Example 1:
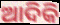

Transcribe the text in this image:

ଆଦିକି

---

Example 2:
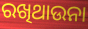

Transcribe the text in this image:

ରଖିଥାଉନା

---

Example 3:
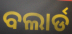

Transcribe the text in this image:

ବଲାର୍ଡ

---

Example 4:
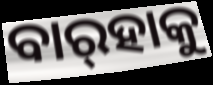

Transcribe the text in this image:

ବାର୍‍ହାକୁ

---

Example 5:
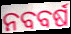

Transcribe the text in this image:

ନବବର୍ଷ